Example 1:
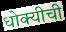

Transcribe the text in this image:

धोक्यीची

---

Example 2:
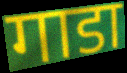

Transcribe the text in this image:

गाडा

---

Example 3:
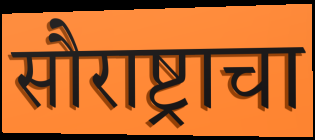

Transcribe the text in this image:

सौराष्ट्राचा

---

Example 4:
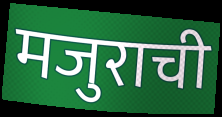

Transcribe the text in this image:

मजुराची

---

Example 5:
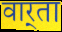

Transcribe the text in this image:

वार्ता